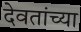
देवतांच्या